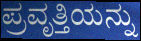
ಪ್ರವೃತ್ತಿಯನ್ನು